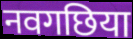
नवगछिया